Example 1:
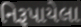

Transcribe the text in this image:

નિરૂપાયેલા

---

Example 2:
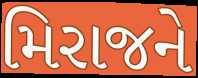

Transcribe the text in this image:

મિરાજને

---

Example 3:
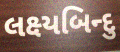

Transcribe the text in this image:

લક્ષ્યબિન્દુ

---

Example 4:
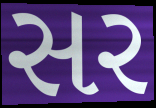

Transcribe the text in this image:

સર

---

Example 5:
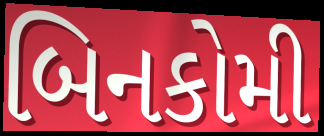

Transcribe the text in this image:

બિનકોમી